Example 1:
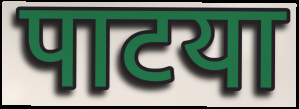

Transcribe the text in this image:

पाटया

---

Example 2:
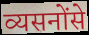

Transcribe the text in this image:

व्यसनोंसे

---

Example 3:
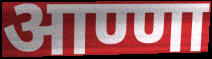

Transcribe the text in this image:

आण्णा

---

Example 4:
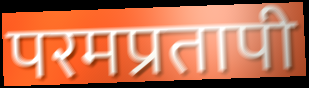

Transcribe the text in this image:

परमप्रतापी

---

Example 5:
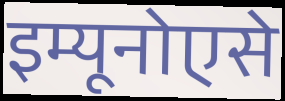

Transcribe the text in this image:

इम्यूनोएसे